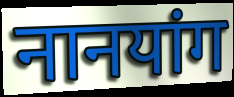
नानयांग